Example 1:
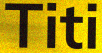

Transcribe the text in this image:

Titi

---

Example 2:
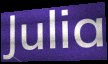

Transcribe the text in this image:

Julia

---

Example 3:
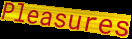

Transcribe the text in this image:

Pleasures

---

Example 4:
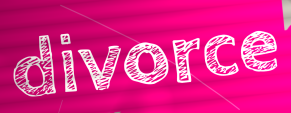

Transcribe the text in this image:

divorce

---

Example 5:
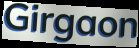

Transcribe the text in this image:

Girgaon